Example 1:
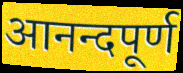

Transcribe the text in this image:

आनन्दपूर्ण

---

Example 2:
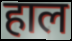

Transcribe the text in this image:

हाल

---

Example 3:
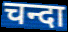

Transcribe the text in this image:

चन्दा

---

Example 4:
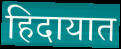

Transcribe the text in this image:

हिदायात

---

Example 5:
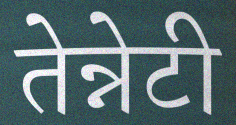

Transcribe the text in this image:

तेन्नेटी